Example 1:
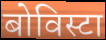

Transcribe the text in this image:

बोविस्टा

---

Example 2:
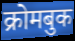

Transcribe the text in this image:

क्रोमबुक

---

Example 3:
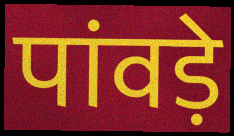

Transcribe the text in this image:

पांवड़े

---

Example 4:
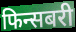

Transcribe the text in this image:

फिन्सबरी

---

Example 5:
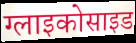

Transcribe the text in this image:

ग्लाइकोसाइड